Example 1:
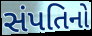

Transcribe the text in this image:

સંપતિનો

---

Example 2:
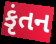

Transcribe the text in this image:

કૃંતન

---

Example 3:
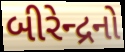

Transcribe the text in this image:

બીરેન્દ્રનો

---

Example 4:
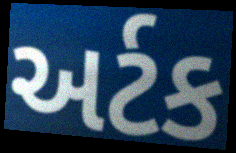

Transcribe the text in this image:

અર્ટક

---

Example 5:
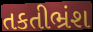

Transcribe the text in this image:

તકતીભ્રંશ